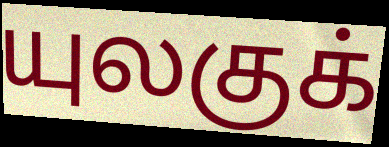
யுலகுக்